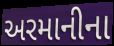
અરમાનીના